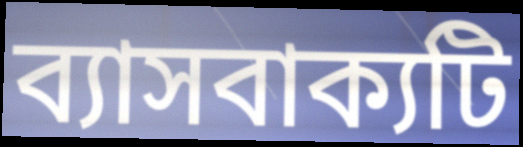
ব্যাসবাক্যটি